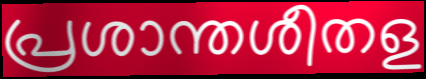
പ്രശാന്തശീതള